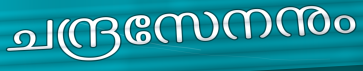
ചന്ദ്രസേനനും